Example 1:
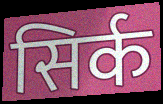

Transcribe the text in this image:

सिर्क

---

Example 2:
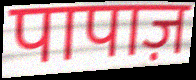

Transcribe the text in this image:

पापाज़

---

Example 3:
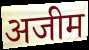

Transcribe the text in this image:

अजीम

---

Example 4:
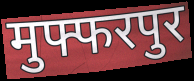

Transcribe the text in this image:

मुफ्फरपुर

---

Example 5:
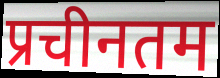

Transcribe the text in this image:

प्रचीनतम